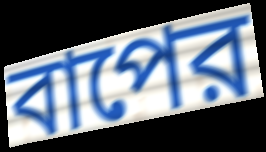
বাপের